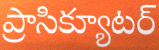
ప్రాసిక్యూటర్